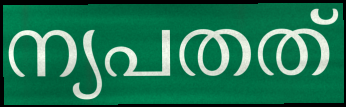
ന്യപതത്